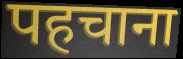
पहचाना